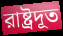
রাষ্ট্রদূত